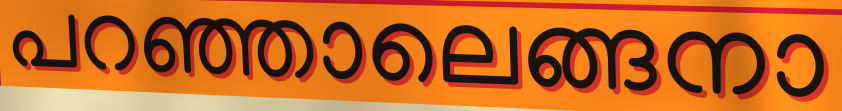
പറഞ്ഞാലെങ്ങനാ